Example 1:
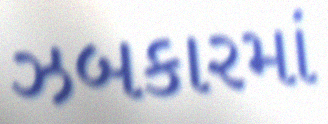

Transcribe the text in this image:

ઝબકારમાં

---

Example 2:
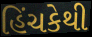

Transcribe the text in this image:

હિંચકેથી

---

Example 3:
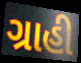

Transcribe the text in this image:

ગ્રાહી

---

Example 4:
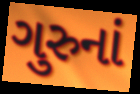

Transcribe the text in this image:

ગુરુનાં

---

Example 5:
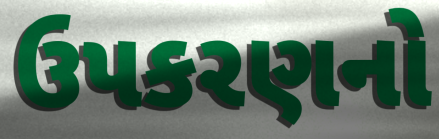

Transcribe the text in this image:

ઉપકરણનો